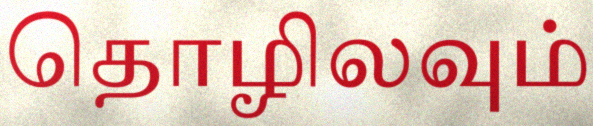
தொழிலவும்